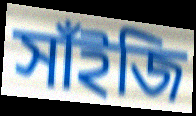
সাঁইজি